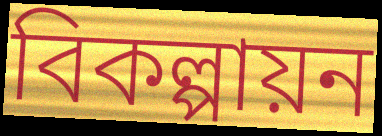
বিকল্পায়ন